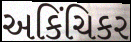
અકિંચિકર